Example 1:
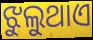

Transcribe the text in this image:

ଝୁଲୁଥାଏ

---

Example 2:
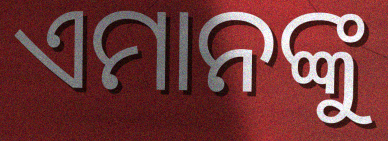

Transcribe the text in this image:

ଏମାନଙ୍କୁ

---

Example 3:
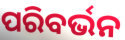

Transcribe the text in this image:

ପରିବର୍ଭନ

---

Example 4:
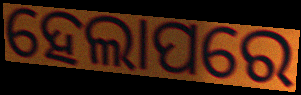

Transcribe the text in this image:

ହେଲାପରେ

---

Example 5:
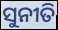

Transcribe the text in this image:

ସୁନୀତି